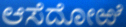
ಆಸೆದೋಱೆ